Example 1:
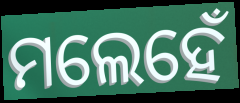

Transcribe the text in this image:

ମଲେହେଁ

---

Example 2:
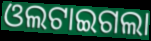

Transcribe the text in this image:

ଓଲଟାଇଗଲା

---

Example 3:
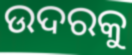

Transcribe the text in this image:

ଉଦରକୁ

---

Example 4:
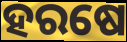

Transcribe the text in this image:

ହରଷେ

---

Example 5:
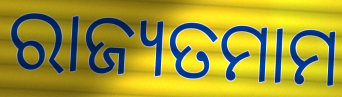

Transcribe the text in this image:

ରାଜ୍ୟତମାମ